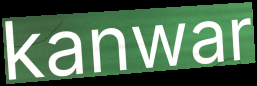
kanwar